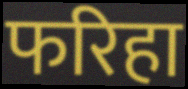
फरिहा